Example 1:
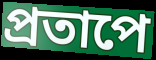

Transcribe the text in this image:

প্রতাপে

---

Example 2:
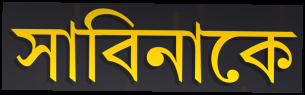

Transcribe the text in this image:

সাবিনাকে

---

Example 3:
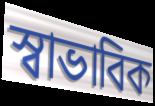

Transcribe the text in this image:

স্বাভাবিক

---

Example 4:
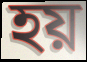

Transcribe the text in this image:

হয়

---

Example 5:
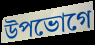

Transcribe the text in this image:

উপভোগে